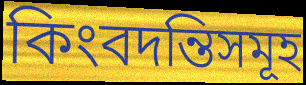
কিংবদন্তিসমূহ